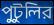
পুটুলির